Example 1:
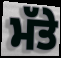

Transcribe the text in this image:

ਮੱਤੇ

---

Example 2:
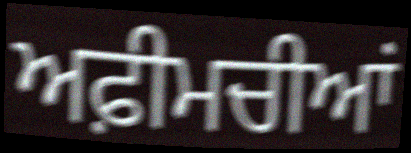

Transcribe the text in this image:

ਅਫ਼ੀਮਚੀਆਂ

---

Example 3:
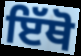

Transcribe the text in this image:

ਇੱਥੋ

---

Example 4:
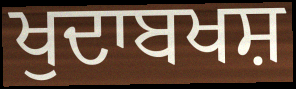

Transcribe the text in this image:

ਖੁਦਾਬਖਸ਼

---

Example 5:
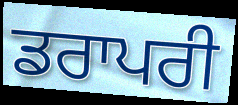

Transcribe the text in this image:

ਡਰਾਪਰੀ